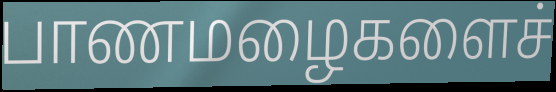
பாணமழைகளைச்